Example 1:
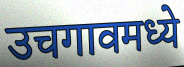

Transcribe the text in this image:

उचगावमध्ये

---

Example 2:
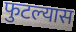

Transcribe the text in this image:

फुटल्यास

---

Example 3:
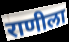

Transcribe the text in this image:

राणीला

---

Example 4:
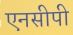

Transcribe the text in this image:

एनसीपी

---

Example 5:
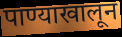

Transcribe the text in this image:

पाण्याखालून